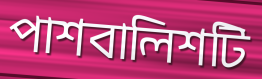
পাশবালিশটি